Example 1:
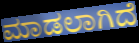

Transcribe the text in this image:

ಮಾಡಲಾಗಿದೆ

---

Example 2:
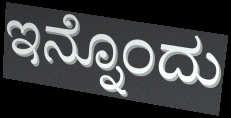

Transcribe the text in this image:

ಇನ್ನೊಂದು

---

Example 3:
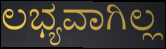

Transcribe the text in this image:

ಲಭ್ಯವಾಗಿಲ್ಲ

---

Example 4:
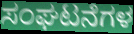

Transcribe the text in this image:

ಸಂಘಟನೆಗಳ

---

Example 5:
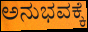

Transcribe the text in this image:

ಅನುಭವಕ್ಕೆ